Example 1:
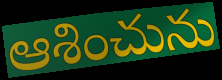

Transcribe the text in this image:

ఆశించును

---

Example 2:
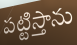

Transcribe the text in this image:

పట్టిస్తాను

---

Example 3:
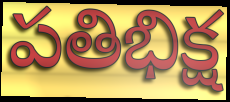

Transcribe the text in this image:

పతిభిక్ష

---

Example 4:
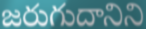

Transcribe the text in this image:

జరుగుదానిని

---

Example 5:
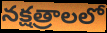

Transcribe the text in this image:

నక్షత్రాలలో